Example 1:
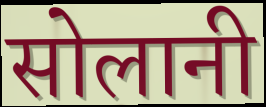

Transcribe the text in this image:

सोलानी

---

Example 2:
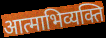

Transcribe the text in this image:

आत्माभिव्यक्ति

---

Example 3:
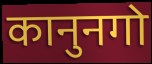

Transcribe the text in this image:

कानुनगो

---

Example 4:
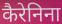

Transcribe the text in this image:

कैरेनिना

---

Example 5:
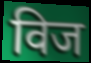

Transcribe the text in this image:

विज